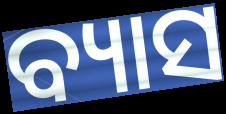
ବ୍ୟାସ